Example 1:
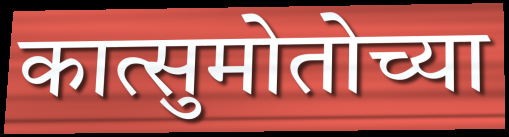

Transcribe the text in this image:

कात्सुमोतोच्या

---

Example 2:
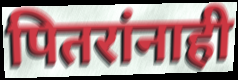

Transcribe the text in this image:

पितरांनाही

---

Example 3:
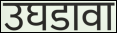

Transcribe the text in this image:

उघडावा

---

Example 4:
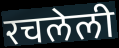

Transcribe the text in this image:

रचलेली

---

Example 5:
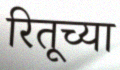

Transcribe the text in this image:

रितूच्या